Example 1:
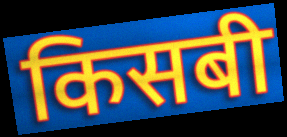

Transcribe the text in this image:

किसबी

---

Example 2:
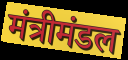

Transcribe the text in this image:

मंत्रीमंडल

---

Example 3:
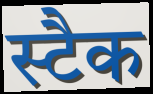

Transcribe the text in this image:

स्‍टैक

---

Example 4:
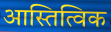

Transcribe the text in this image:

आस्तित्विक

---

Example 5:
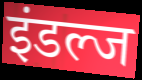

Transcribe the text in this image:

इंडल्ज